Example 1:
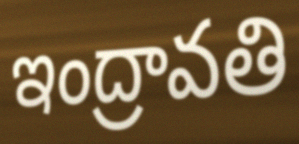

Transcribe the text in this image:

ఇంద్రావతి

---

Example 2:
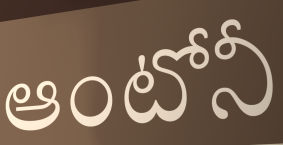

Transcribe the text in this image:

ఆంటోనీ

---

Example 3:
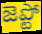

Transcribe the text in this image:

జెప్టో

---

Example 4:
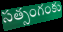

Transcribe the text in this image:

సత్సంగంకు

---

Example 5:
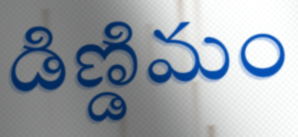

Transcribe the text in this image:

డిణ్డిమం